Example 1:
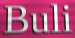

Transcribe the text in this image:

Buli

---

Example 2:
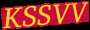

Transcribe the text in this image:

KSSVV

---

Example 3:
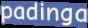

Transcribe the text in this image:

padinga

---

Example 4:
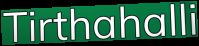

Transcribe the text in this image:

Tirthahalli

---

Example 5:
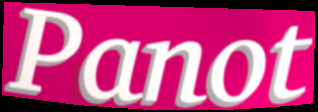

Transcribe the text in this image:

Panot